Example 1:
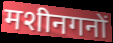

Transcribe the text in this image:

मशीनगनों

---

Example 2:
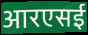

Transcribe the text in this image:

आरएसई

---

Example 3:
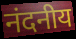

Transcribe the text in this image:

नंदनीय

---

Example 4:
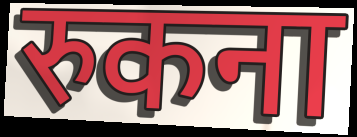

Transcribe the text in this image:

रुकना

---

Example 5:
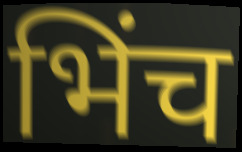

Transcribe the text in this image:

भिंच